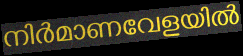
നിർമാണവേളയിൽ